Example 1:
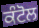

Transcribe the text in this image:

ਕੰਟੋਲ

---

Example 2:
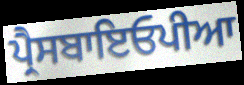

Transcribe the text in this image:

ਪ੍ਰੈਸਬਾਇਓਪੀਆ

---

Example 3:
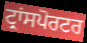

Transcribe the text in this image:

ਟ੍ਰਾਂਸਪੋਰਟਰ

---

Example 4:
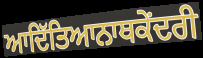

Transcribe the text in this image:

ਆਦਿੱਤਿਆਨਾਥਕੇਂਦਰੀ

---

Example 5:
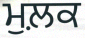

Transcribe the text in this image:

ਮੁਲ਼ਕ